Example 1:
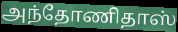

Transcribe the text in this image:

அந்தோணிதாஸ்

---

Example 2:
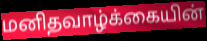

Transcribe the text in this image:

மனிதவாழ்க்கையின்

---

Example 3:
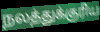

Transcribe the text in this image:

நலத்துக்குரிய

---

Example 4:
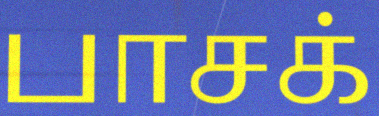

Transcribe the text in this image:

பாசக்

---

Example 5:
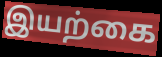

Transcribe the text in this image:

இயற்கை